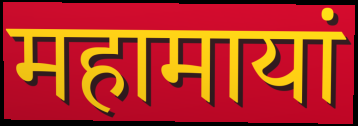
महामायां